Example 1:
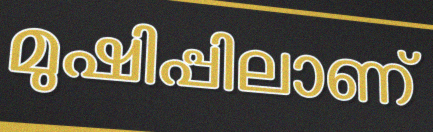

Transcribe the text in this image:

മുഷിപ്പിലാണ്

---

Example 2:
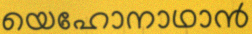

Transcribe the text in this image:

യെഹോനാഥാൻ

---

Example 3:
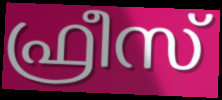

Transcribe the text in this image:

ഫ്രീസ്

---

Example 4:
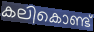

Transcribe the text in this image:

കലികൊണ്ട്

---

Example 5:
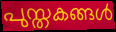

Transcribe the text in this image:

പുസ്തകങ്ങൾ